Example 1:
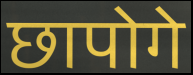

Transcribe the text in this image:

छापोगे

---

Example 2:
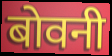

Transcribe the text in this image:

बोवनी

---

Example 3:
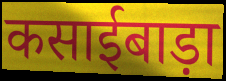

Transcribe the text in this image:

कसाईबाड़ा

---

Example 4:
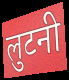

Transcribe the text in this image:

लुटनी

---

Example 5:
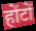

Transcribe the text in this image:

होंटों